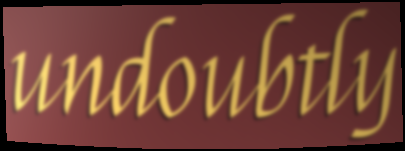
undoubtly